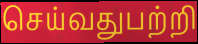
செய்வதுபற்றி